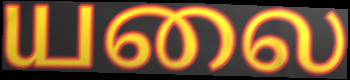
யலை